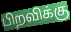
பிறவிக்கு